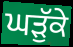
ਘੜੁੱਕੇ